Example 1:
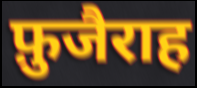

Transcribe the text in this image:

फ़ुजैराह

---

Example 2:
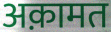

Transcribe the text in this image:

अक़ामत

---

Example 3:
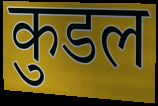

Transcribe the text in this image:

कुडल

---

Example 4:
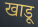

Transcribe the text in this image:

खाडू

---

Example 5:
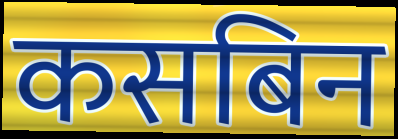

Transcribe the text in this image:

कसबिन